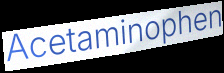
Acetaminophen